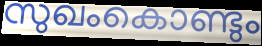
സുഖംകൊണ്ടും